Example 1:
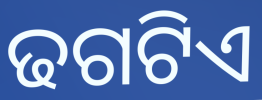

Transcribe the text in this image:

ଢଗଟିଏ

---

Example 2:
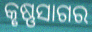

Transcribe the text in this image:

କୃଷ୍ଣସାଗର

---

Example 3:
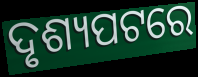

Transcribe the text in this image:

ଦୃଶ୍ୟପଟରେ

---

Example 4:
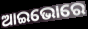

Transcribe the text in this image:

ଆଇଭୋରେ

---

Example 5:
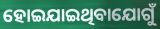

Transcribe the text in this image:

ହୋଇଯାଇଥିବାଯୋଗୁଁ